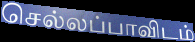
செல்லப்பாவிடம்